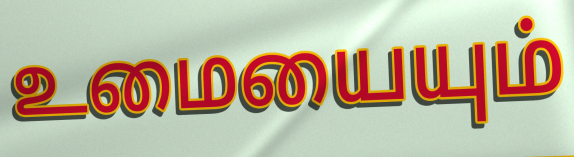
உமையையும்